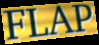
FLAP